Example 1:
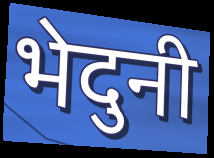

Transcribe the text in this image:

भेदुनी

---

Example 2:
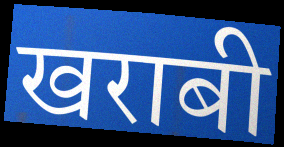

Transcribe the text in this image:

खराबी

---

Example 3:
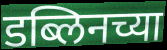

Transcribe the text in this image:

डब्लिनच्या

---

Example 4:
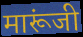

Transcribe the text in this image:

मारूंजी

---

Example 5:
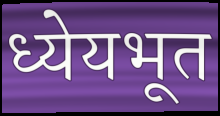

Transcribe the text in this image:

ध्येयभूत